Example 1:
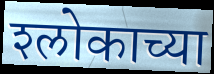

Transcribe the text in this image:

श्लोकाच्या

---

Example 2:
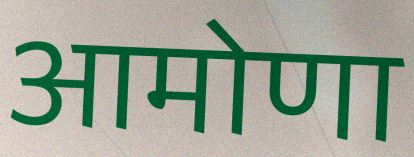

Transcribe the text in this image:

आमोणा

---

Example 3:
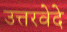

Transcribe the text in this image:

उत्तरवेदे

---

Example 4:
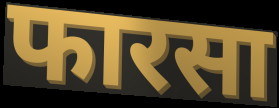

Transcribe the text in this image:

फारसा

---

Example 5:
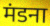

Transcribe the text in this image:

मंडना